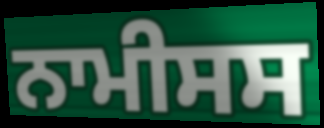
ਨਾਮੀਸਸ